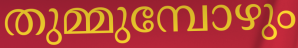
തുമ്മുമ്പോഴും